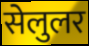
सेलुलर